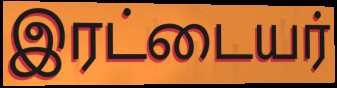
இரட்டையர்